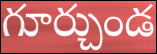
గూర్చుండ